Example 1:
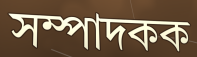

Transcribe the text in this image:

সম্পাদকক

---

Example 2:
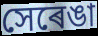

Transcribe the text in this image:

সেৰেঙা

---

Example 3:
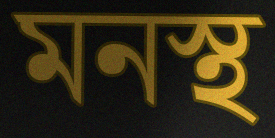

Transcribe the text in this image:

মনস্থ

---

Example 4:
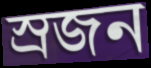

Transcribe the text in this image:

স্ৰজন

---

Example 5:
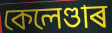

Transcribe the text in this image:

কেলেণ্ডাৰ